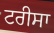
ਟਰੀਸਾ